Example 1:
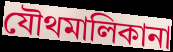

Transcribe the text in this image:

যৌথমালিকানা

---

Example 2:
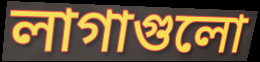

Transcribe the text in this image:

লাগাগুলো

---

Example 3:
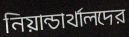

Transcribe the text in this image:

নিয়ান্ডার্থালদের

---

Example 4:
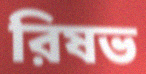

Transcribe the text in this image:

রিষভ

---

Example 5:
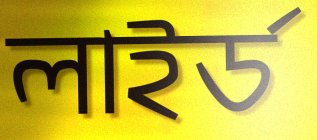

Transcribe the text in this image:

লাইর্ড